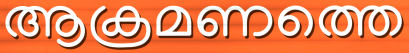
ആക്രമണത്തെ